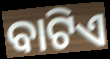
ବାଟିଏ